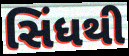
સિંધથી